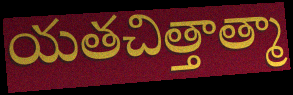
యతచిత్తాత్మా